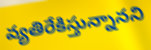
వ్యతిరేకిస్తున్నానని